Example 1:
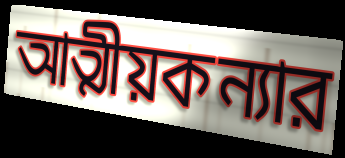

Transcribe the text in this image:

আত্মীয়কন্যার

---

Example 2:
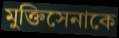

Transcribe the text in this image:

মুক্তিসেনাকে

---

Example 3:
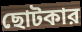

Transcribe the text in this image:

ছোটকার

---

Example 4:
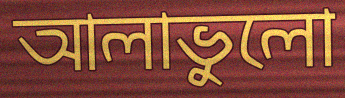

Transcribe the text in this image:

আলাভুলো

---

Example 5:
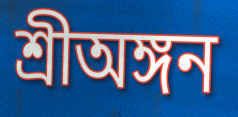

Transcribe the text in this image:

শ্রীঅঙ্গন